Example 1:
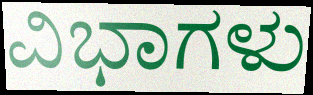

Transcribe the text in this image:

ವಿಭಾಗಳು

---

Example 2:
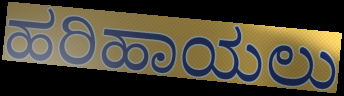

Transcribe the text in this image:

ಹರಿಹಾಯಲು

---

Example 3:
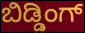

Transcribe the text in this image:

ಬಿಡ್ಡಿಂಗ್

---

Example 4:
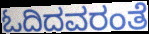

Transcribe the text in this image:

ಓದಿದವರಂತೆ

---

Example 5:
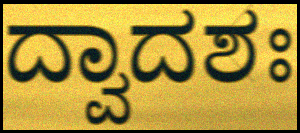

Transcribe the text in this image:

ದ್ವಾದಶಃ